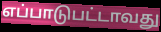
எப்பாடுபட்டாவது